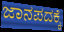
ಜಾನಪದಕ್ಕೆ